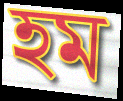
হম